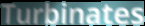
Turbinates